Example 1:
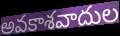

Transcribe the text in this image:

అవకాశవాదుల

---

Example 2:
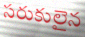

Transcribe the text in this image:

సరుకులైన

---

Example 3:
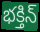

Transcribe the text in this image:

భక్తిన్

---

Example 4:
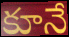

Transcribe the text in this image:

కూనే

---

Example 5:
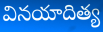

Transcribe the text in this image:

వినయాదిత్య